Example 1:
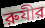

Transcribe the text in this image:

রুযীর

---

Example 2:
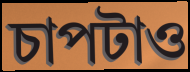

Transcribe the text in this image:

চাপটাও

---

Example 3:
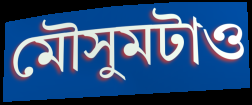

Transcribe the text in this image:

মৌসুমটাও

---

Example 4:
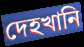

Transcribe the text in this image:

দেহখানি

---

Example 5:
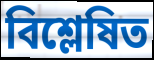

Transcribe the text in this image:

বিশ্লেষিত